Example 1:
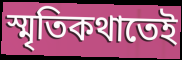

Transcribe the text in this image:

স্মৃতিকথাতেই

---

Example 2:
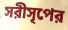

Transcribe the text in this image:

সরীসৃপের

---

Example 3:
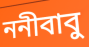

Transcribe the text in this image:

ননীবাবু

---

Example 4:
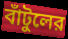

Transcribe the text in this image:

বাঁটুলের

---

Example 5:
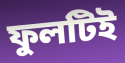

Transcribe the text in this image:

ফুলটিই